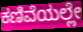
ಕಣಿವೆಯಲ್ಲೇ